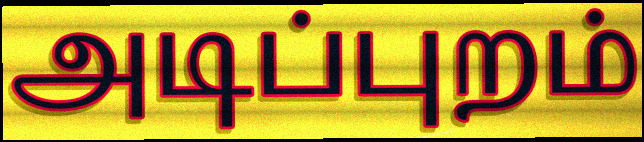
அடிப்புறம்